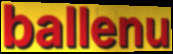
ballenu